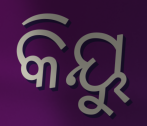
କିୟୁ